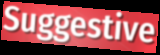
Suggestive